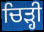
ਚਿੜ੍ਹੀ